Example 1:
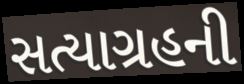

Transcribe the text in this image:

સત્યાગ્રહની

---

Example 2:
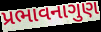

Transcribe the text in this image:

પ્રભાવનાગુણ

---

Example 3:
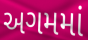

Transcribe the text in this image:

અગમમાં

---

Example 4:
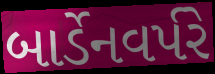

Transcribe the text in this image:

બાર્ડેનવર્પરે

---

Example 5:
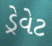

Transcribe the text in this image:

ડ્રેવેટ